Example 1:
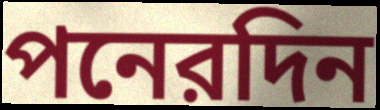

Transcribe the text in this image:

পনেরদিন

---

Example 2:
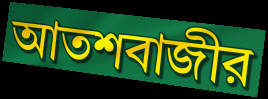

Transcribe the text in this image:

আতশবাজীর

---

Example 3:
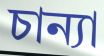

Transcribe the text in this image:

চান্যা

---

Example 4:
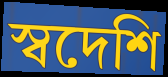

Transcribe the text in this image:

স্বদেশি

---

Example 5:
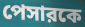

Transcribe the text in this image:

পেসারকে